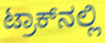
ಟ್ರಾಕ್‌ನಲ್ಲಿ